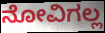
ನೋವಿಗಲ್ಲ